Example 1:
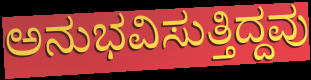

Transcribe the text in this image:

ಅನುಭವಿಸುತ್ತಿದ್ದವು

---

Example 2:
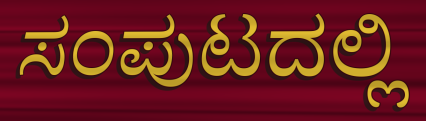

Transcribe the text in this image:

ಸಂಪುಟದಲ್ಲಿ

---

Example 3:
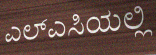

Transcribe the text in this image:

ಎಲ್ಎಸಿಯಲ್ಲಿ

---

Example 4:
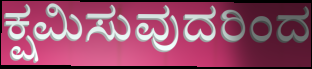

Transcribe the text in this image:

ಕ್ಷಮಿಸುವುದರಿಂದ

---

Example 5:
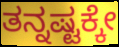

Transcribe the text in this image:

ತನ್ನಷ್ಟಕ್ಕೇ